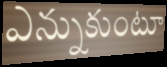
ఎన్నుకుంటూ